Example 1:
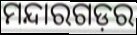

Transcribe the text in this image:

ମନ୍ଦାରଗଡ଼ର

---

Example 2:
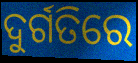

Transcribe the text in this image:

ଦୁର୍ଗତିରେ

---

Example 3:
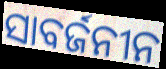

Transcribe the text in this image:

ସାବର୍ଜନୀନ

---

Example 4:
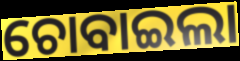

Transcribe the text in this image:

ଚୋବାଇଲା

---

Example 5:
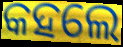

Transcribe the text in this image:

କହଲେ